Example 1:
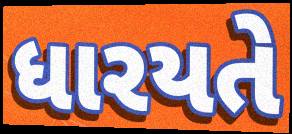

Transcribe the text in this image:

ધારયતે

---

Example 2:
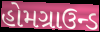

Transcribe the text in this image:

હોમગ્રાઉન્ડ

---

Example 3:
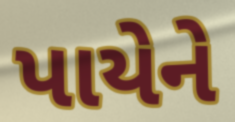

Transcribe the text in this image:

પાયેને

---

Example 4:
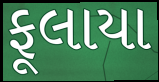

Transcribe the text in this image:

ફૂલાયા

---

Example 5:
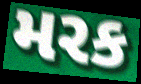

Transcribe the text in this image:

મરક